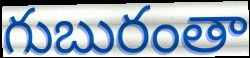
గుబురంతా